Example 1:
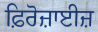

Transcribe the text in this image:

ਫ਼ਿਰੋਜ਼ਾਈਜ਼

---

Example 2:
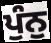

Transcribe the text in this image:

ਪੁੰਨੁ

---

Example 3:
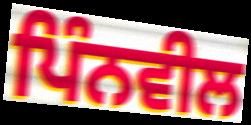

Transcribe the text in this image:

ਪਿੰਨਵੀਲ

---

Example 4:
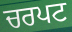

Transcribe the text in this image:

ਚਰਪਟ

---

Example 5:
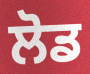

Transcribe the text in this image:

ਲੋਡ